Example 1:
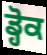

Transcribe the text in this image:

ਡ੍ਹੋਕ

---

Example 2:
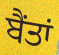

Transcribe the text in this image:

ਬੈਂਤਾਂ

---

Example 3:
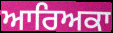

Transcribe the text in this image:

ਆਰਿਅਕਾ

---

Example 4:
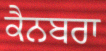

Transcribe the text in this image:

ਕੈਨਬਰਾ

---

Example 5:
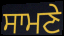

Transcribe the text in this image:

ਸਾਮਣੇ